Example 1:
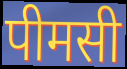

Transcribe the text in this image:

पीमसी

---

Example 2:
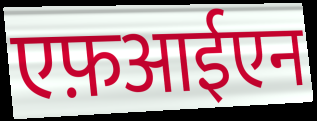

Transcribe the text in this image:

एफ़आईएन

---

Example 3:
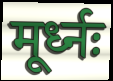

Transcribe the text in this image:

मूर्ध्नः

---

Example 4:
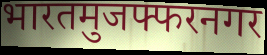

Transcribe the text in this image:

भारतमुजफ्फरनगर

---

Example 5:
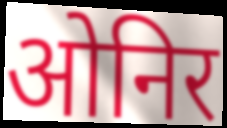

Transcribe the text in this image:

ओनिर